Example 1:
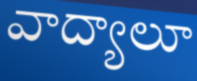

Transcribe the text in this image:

వాద్యాలూ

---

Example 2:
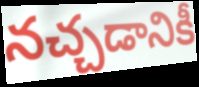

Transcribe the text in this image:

నచ్చడానికీ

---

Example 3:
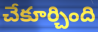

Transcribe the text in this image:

చేకూర్చింది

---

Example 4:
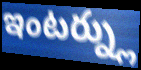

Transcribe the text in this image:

ఇంటర్న్లు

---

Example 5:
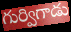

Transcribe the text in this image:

గుర్విగాడు